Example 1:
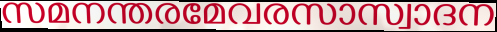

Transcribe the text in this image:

സമനന്തരമേവരസാസ്വാദന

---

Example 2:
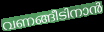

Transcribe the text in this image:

വണങ്ങീടിനാൻ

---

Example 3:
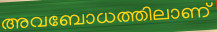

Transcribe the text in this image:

അവബോധത്തിലാണ്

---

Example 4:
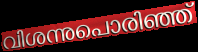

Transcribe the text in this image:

വിശന്നുപൊരിഞ്ഞ്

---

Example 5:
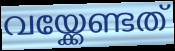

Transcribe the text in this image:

വയ്ക്കേണ്ടത്